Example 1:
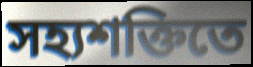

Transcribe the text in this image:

সহ্যশক্তিতে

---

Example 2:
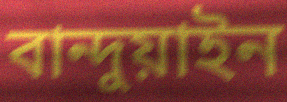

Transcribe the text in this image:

বান্দুয়াইন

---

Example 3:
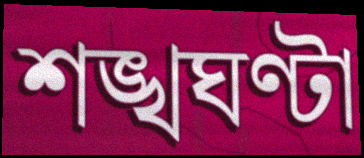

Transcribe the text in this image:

শঙ্খঘণ্টা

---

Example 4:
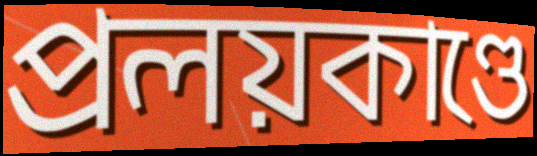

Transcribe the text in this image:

প্রলয়কাণ্ডে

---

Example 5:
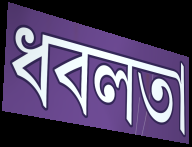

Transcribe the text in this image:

ধবলতা